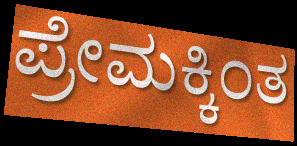
ಪ್ರೇಮಕ್ಕಿಂತ